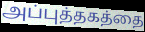
அப்புத்தகத்தை